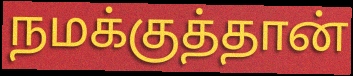
நமக்குத்தான்